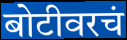
बोटीवरचं